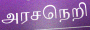
அரசநெறி